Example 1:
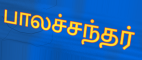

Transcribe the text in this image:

பாலச்சந்தர்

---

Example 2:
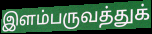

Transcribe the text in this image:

இளம்பருவத்துக்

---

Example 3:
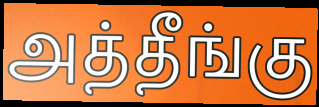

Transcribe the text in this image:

அத்தீங்கு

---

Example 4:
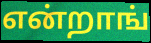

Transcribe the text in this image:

என்றாங்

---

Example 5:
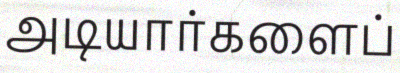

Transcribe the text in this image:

அடியார்களைப்